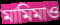
মামিমাও